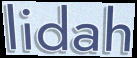
lidah